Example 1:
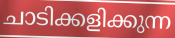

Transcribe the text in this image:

ചാടിക്കളിക്കുന്ന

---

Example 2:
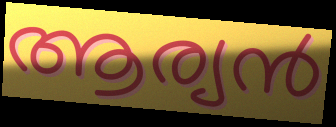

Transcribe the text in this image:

ആര്യൻ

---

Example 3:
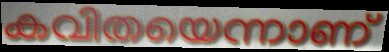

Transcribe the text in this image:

കവിതയെന്നാണ്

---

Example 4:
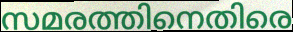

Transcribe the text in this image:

സമരത്തിനെതിരെ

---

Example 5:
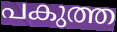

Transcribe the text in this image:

പകുത്ത